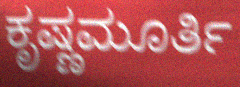
ಕೃಷ್ಣಮೂರ್ತಿ